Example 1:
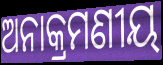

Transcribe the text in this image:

ଅନାକ୍ରମଣୀୟ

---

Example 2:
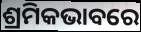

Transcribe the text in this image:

ଶ୍ରମିକଭାବରେ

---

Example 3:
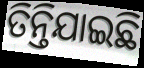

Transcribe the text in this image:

ତିନ୍ତିଯାଇଛି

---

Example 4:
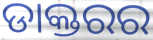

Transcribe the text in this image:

ଡାକ୍ତରର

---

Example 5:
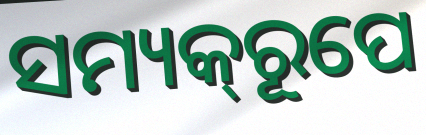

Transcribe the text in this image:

ସମ୍ୟକ୍‌ରୂପେ